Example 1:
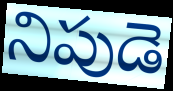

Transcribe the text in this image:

నిపుడె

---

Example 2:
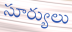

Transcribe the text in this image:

సూర్యులు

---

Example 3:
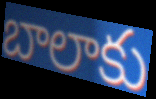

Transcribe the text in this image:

బాలాకు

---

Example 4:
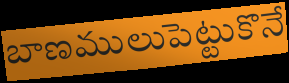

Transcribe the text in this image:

బాణములుపెట్టుకొనే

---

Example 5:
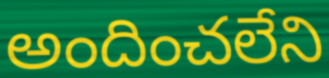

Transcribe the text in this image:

అందించలేని